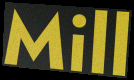
Mill